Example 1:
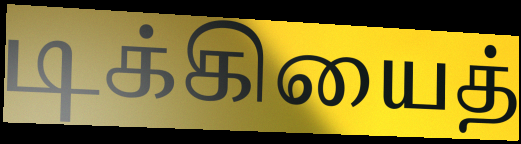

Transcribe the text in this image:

டிக்கியைத்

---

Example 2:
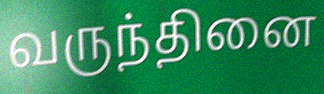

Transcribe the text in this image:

வருந்தினை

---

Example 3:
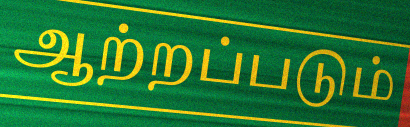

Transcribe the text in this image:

ஆற்றப்படும்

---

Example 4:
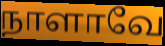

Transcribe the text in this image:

நாளாவே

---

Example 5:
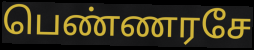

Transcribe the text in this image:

பெண்ணரசே